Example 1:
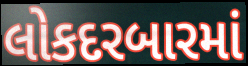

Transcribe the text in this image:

લોકદરબારમાં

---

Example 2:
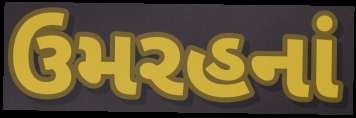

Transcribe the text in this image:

ઉમરહનાં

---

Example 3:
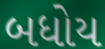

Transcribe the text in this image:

બધોય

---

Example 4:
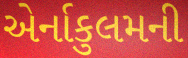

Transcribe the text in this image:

એર્નાકુલમની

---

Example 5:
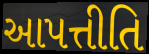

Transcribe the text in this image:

આપત્તીતિ